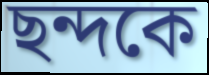
ছন্দকে